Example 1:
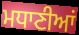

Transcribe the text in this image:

ਮਧਾਣੀਆਂ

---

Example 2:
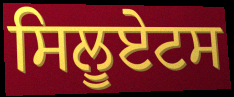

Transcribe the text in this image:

ਸਿਲੂਏਟਸ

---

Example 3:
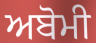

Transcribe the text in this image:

ਅਬੋਮੀ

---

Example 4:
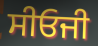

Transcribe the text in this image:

ਸੀਓਜੀ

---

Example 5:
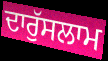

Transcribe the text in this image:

ਦਾਰੁੱਸਲਾਮ